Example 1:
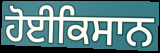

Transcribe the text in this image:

ਹੋਈਕਿਸਾਨ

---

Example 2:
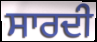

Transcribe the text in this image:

ਸਾਰਦੀ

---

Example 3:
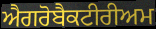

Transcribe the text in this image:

ਐਗਰੋਬੈਕਟੀਰੀਅਮ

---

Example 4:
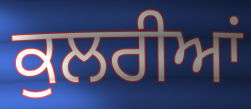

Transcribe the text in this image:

ਕੁਲਰੀਆਂ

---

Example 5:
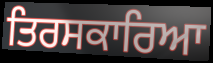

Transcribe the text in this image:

ਤਿਰਸਕਾਰਿਆ